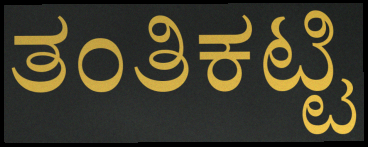
ತಂತಿಕಟ್ಟಿ